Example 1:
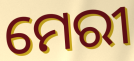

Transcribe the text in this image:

ମେରୀ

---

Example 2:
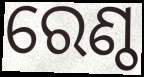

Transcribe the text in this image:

ରେଣ୍ଠ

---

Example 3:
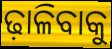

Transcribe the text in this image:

ଢ଼ାଳିବାକୁ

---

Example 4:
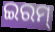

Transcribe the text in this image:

ଇରମ୍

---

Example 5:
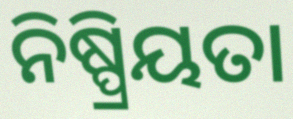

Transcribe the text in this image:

ନିଷ୍ପ୍ରିୟତା